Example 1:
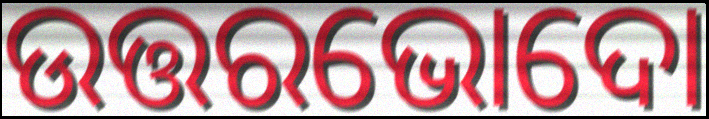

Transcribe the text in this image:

ଉତ୍ତରଭୋଦୋ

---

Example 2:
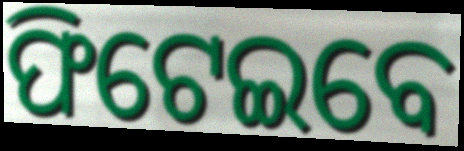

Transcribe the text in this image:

ଫିଟେଇବେ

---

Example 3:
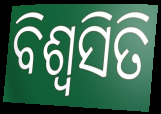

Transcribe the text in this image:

ବିଶ୍ଵସିତି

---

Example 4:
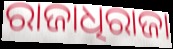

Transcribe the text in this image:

ରାଜାଧିରାଜା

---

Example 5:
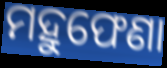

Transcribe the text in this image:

ମହୁଫେଣା